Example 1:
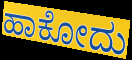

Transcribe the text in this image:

ಹಾಕೋದು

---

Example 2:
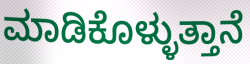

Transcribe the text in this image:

ಮಾಡಿಕೊಳ್ಳುತ್ತಾನೆ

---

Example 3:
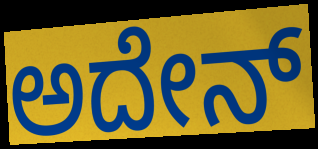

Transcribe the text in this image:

ಅದೇನ್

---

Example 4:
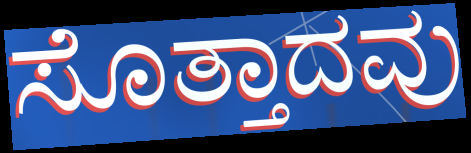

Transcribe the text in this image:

ಸೊತ್ತಾದವು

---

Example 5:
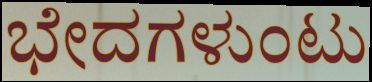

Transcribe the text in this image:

ಭೇದಗಳುಂಟು